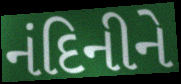
નંદિનીને